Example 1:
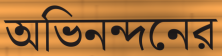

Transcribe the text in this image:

অভিনন্দনের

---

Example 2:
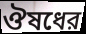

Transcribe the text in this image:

ঔষধের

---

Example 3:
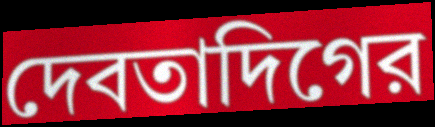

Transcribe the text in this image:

দেবতাদিগের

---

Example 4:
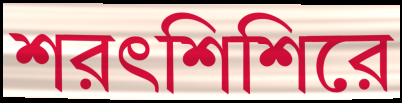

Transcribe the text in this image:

শরৎশিশিরে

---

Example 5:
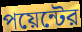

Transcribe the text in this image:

পয়েন্টের